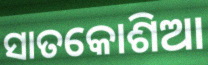
ସାତକୋଶିଆ